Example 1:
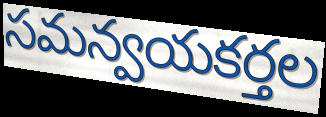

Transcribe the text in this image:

సమన్వయకర్తల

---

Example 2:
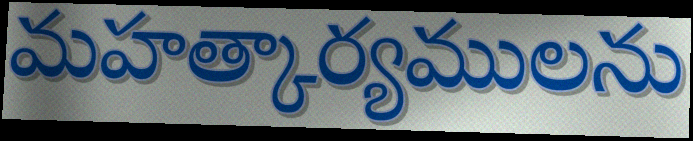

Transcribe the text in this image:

మహత్కార్యములను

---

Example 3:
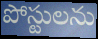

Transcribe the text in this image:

పోస్టులను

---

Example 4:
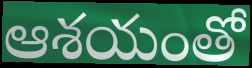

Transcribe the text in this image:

ఆశయంతో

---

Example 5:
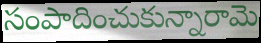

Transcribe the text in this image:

సంపాదించుకున్నారామె